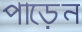
পাড়েন